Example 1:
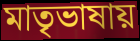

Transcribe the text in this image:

মাতৃভাষায়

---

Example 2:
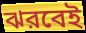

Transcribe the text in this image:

ঝরবেই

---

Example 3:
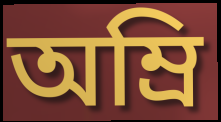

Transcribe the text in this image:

অম্রি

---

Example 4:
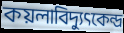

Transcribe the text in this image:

কয়লাবিদ্যুৎকেন্দ্র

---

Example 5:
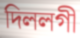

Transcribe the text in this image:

দিললগী